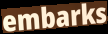
embarks